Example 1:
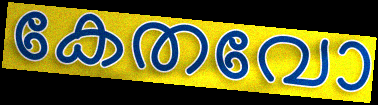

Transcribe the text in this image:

കേതവോ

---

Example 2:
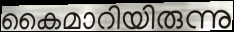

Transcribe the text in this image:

കൈമാറിയിരുന്നു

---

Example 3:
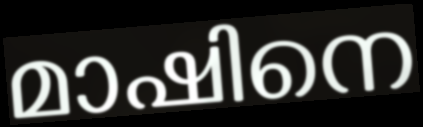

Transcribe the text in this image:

മാഷിനെ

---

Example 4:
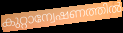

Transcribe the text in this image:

കുറ്റാന്വേഷണത്തിൽ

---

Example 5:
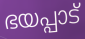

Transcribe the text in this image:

ഭയപ്പാട്